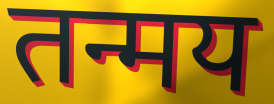
तन्‍मय